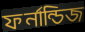
ফর্নান্ডিজ